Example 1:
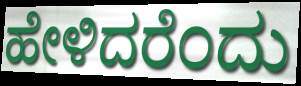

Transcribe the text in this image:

ಹೇಳಿದರೆಂದು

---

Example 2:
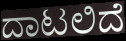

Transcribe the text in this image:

ದಾಟಲಿದೆ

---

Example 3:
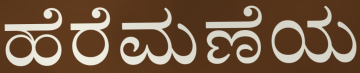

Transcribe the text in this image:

ಹೆರೆಮಣೆಯ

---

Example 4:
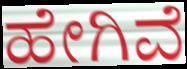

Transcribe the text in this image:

ಹೇಗಿವೆ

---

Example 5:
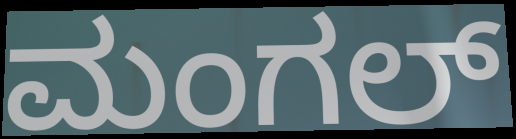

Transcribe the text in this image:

ಮಂಗಲ್